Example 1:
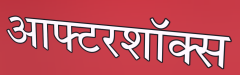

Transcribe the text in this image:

आफ्टरशॉक्स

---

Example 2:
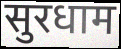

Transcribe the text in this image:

सुरधाम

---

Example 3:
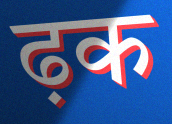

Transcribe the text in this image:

ढ़क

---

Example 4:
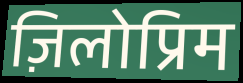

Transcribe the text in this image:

ज़िलोप्रिम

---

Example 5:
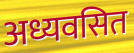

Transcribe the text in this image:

अध्यवसित